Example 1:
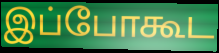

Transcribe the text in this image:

இப்போகூட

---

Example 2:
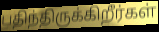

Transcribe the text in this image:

பதிந்திருக்கிறீர்கள்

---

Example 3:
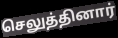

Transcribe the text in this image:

செலுத்தினார்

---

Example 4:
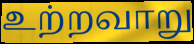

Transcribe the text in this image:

உற்றவாறு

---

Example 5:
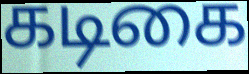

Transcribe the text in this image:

கடிகை